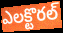
ఎలక్టొరల్